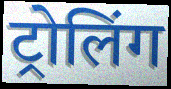
ट्रोलिंग